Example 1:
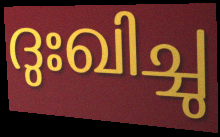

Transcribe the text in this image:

ദുഃഖിച്ചു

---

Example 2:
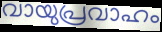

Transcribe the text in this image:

വായുപ്രവാഹം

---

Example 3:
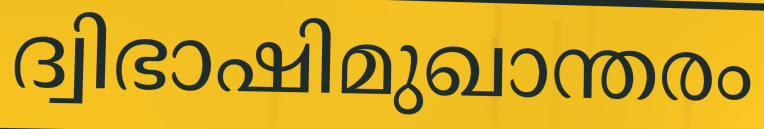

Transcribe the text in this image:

ദ്വിഭാഷിമുഖാന്തരം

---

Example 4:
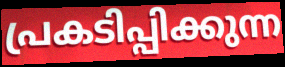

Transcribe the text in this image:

പ്രകടിപ്പിക്കുന്ന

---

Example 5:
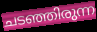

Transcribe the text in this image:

ചടഞ്ഞിരുന്ന